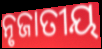
ନୃଜାତୀୟ